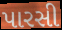
પારસી